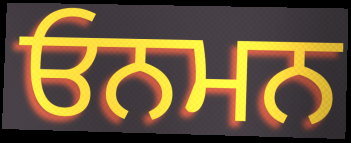
ਓਨਮਨ